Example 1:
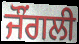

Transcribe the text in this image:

ਜੌਂਗਲੀ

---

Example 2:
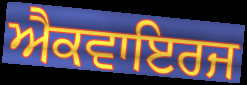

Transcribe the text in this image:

ਐਕਵਾਇਰਜ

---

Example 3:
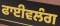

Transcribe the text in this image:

ਫਾਈਵਲੰਗ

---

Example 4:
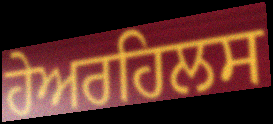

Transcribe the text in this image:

ਹੇਅਰਹਿਲਸ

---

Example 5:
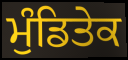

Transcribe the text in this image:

ਮੁੰਡਿਤੇਕ